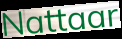
Nattaar